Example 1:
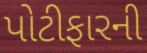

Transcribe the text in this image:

પોટીફારની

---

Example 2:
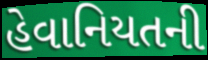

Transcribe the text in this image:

હેવાનિયતની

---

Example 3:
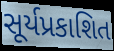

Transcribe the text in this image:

સૂર્યપ્રકાશિત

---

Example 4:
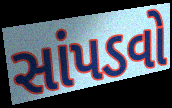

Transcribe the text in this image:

સાંપડવો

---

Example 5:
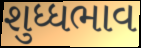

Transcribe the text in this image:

શુધ્ધભાવ